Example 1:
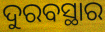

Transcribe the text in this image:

ଦୁରବସ୍ଥାର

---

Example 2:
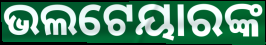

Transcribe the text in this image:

ଭଲଟେୟାରଙ୍କ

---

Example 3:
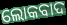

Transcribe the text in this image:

ଲୋକବାଦ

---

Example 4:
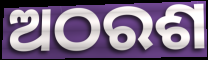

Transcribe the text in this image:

ଅଠରଶ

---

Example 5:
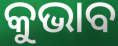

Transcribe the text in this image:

କୁଭାବ